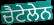
ਚੈਟੇਲੇਨ